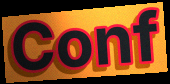
Conf